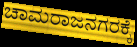
ಚಾಮರಾಜನಗರಕ್ಕೆ